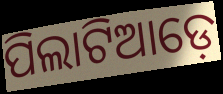
ପିଲାଟିଆଡ଼େ